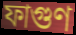
ফাগুণ